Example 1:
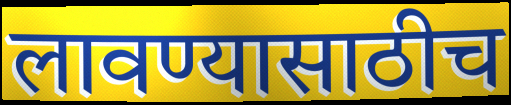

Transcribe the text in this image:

लावण्यासाठीच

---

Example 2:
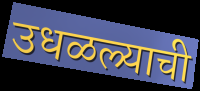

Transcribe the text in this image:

उधळल्याची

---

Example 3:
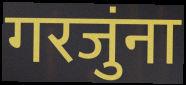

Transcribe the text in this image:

गरजुंना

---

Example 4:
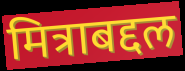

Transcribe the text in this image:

मित्राबद्दल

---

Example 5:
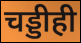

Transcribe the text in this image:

चड्डीही